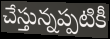
చేస్తున్నప్పటికీ